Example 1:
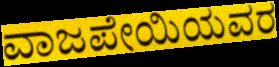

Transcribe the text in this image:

ವಾಜಪೇಯಿಯವರ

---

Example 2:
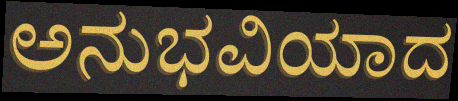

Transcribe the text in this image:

ಅನುಭವಿಯಾದ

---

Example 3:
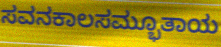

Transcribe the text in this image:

ಸವನಕಾಲಸಮ್ಭೂತಾಯ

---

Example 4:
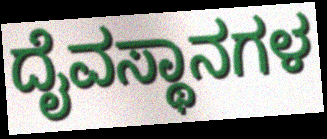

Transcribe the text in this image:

ದೈವಸ್ಥಾನಗಳ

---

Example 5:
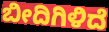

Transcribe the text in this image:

ಬೀದಿಗಿಳಿದೆ